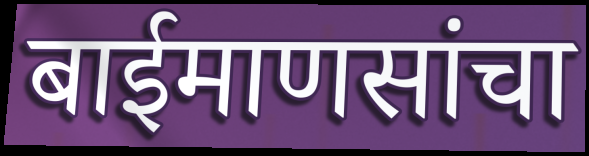
बाईमाणसांचा